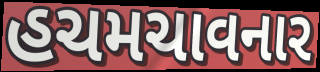
હચમચાવનાર